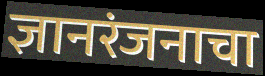
ज्ञानरंजनाचा